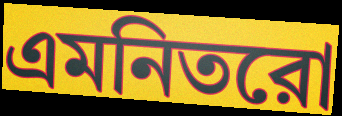
এমনিতরো